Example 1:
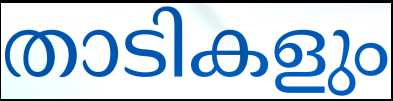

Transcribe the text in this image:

താടികളും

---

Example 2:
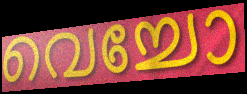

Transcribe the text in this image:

വെച്ചോ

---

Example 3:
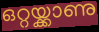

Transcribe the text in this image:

ഒറ്റയ്ക്കാണു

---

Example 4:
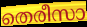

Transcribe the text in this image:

തെരീസാ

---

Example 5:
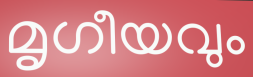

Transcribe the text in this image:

മൃഗീയവും